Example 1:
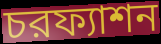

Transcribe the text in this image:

চরফ্যাশন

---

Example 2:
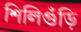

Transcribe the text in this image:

শিলিগুঁড়ি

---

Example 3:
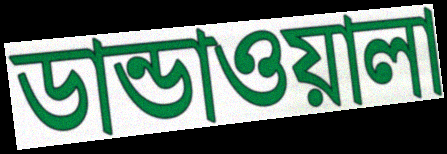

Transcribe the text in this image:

ডান্ডাওয়ালা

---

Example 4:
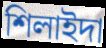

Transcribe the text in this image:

শিলাইদা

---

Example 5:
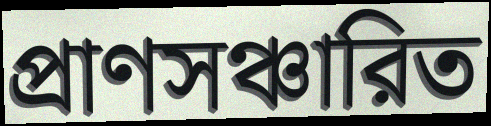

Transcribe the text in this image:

প্রাণসঞ্চারিত